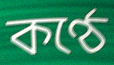
কণ্ঠে